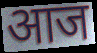
आज